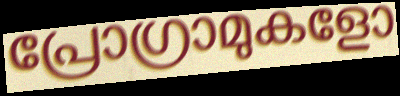
പ്രോഗ്രാമുകളോ